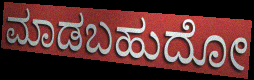
ಮಾಡಬಹುದೋ